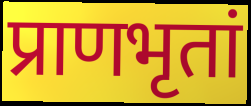
प्राणभृतां